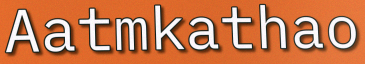
Aatmkathao